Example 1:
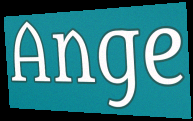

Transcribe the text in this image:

Ange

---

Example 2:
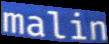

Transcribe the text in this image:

malin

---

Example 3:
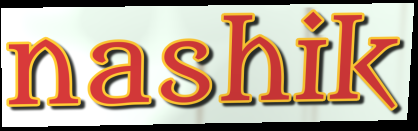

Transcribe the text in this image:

nashik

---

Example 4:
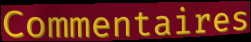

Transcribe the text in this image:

Commentaires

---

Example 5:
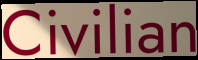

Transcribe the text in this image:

Civilian